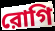
রোগি